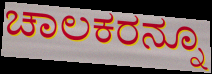
ಚಾಲಕರನ್ನೂ